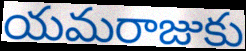
యమరాజుకు